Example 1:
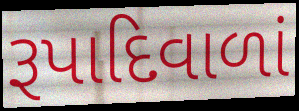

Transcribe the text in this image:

રૂપાદિવાળાં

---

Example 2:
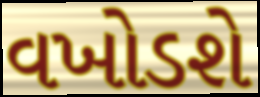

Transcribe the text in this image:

વખોડશે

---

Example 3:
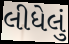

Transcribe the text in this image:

લીધેલું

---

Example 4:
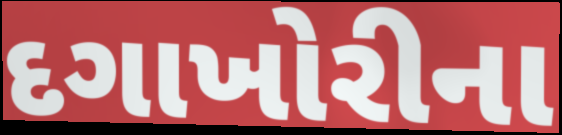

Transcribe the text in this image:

દગાખોરીના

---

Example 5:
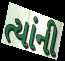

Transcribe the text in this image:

ત્યાંની